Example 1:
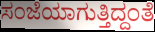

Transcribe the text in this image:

ಸಂಜೆಯಾಗುತ್ತಿದ್ದಂತೆ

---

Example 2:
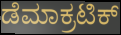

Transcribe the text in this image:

ಡೆಮಾಕ್ರಟಿಕ್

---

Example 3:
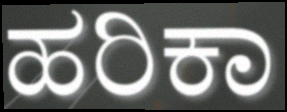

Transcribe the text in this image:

ಹರಿಕಾ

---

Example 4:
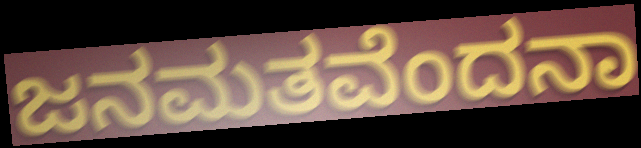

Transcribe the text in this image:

ಜನಮತವೆಂದನಾ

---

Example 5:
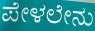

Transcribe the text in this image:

ಪೇಳಲೇನು